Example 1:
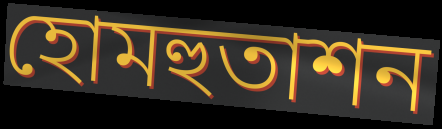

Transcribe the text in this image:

হোমহুতাশন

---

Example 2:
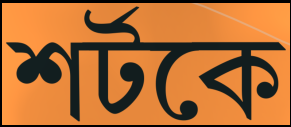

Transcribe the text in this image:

শর্টকে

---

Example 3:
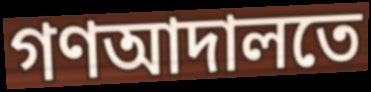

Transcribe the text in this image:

গণআদালতে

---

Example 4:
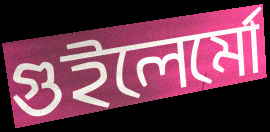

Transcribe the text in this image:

গুইলের্মো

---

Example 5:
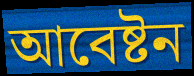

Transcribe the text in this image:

আবেষ্টন